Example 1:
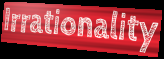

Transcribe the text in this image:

Irrationality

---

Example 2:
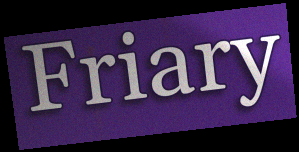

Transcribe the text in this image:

Friary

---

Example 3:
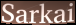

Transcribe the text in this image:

Sarkai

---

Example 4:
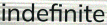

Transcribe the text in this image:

indefinite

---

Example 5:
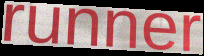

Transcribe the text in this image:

runner